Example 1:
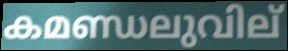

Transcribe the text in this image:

കമണ്ഡലുവില്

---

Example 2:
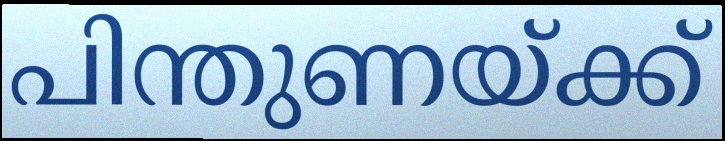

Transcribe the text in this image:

പിന്തുണയ്ക്ക്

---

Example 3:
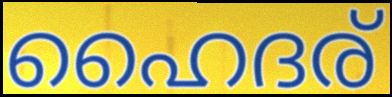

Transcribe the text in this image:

ഹൈദര്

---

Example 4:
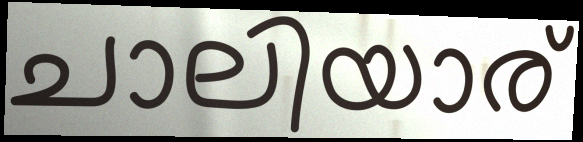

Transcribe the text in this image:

ചാലിയാര്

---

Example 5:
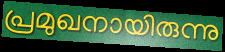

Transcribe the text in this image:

പ്രമുഖനായിരുന്നു